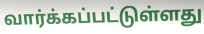
வார்க்கப்பட்டுள்ளது